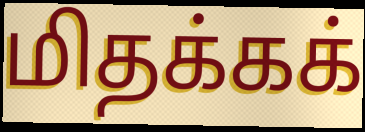
மிதக்கக்